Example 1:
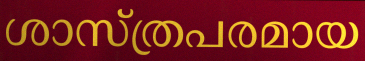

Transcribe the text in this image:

ശാസ്ത്രപരമായ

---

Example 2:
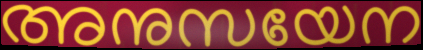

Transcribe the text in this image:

അനുസയേന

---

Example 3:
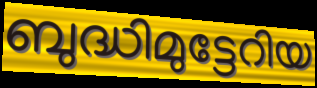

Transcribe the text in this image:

ബുദ്ധിമുട്ടേറിയ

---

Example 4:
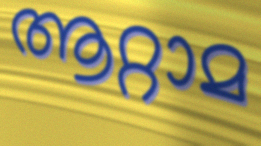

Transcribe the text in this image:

ആറ്റാമ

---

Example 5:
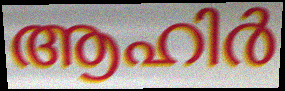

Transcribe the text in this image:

ആഹിർ